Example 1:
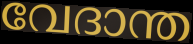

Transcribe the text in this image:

വേദാന്ത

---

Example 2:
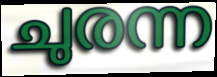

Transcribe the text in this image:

ചുരന്ന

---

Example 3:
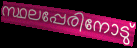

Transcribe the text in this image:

സ്ഥലപ്പേരിനോടു്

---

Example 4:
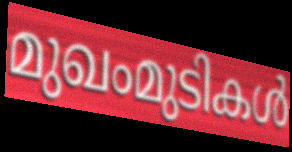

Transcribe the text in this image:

മുഖംമുടികൾ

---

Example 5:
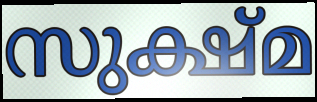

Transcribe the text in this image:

സുക്ഷ്മ